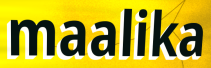
maalika